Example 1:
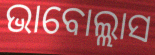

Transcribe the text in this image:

ଭାବୋଲ୍ଲାସ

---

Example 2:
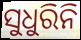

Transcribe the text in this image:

ସୁଧୁରିନି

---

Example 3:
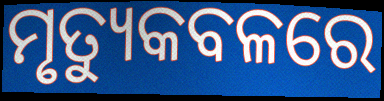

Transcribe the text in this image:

ମୃତ୍ୟୁକବଳରେ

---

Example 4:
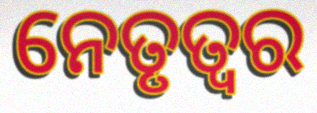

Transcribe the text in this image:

ନେତୃତ୍ବର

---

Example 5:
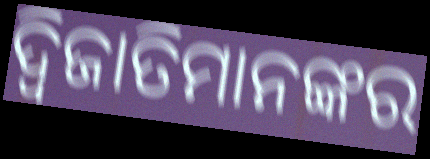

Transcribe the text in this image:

ଦ୍ୱିଜାତିମାନଙ୍କର